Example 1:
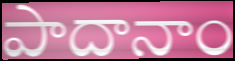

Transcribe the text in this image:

పాదానాం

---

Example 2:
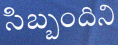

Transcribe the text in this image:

సిబ్బందిని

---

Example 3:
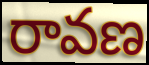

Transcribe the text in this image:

రావణ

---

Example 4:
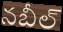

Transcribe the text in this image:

నబీల్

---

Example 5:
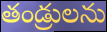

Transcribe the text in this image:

తండ్రులను